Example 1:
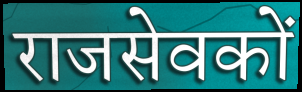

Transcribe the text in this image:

राजसेवकों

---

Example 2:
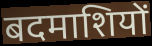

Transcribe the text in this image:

बदमाशियों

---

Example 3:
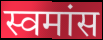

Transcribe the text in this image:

स्वमांस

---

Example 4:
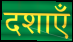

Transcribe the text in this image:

दशाएँ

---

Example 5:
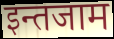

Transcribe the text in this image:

इन्तजाम